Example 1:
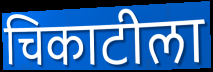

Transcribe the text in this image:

चिकाटीला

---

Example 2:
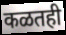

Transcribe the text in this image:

कळतही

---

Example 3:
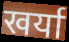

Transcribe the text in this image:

खर्या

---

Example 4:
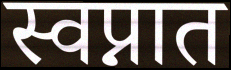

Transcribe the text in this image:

स्वप्नात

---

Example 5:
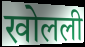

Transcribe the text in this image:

खोलली